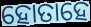
ହୋତାହେ